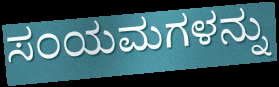
ಸಂಯಮಗಳನ್ನು